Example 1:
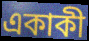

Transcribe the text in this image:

একাকী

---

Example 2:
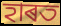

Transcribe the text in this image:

হাৰত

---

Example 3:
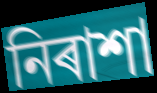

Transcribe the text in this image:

নিৰাশা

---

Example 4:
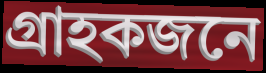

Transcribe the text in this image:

গ্ৰাহকজনে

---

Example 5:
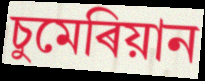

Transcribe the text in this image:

চুমেৰিয়ান